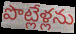
పొట్లేళ్లను